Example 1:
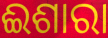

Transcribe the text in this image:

ଈଶାରା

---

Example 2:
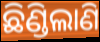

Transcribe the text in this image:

ଛିଣ୍ଡିଲାଣି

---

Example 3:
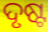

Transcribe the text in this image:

ଦୃଷ୍ଟ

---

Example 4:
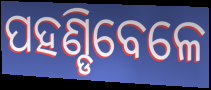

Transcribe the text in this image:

ପହଣ୍ଡିବେଳେ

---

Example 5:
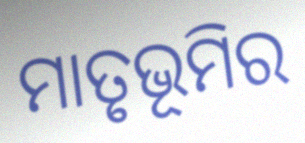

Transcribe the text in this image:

ମାତୃଭୂମିର